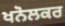
ਖਨੋਲਕਰ